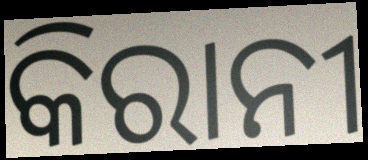
କିରାନୀ